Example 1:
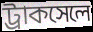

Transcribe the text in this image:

ট্রাকসেলে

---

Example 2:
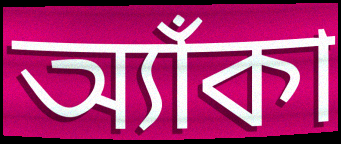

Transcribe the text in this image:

অ্যাঁকা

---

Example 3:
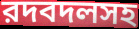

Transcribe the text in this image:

রদবদলসহ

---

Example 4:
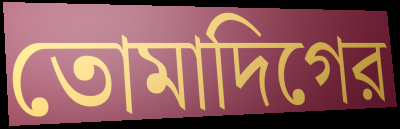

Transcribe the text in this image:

তোমাদিগের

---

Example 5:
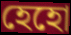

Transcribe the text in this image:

হেহো